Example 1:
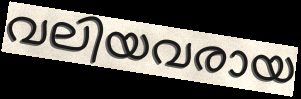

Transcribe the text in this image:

വലിയവരായ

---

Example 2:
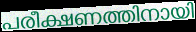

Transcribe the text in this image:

പരീക്ഷണത്തിനായി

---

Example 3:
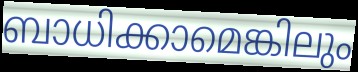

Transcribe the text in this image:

ബാധിക്കാമെങ്കിലും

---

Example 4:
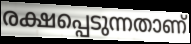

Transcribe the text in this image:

രക്ഷപ്പെടുന്നതാണ്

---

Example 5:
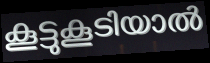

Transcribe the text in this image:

കൂട്ടുകൂടിയാൽ